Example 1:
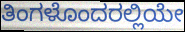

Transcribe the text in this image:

ತಿಂಗಳೊಂದರಲ್ಲಿಯೇ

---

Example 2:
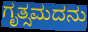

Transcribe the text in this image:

ಗೃತ್ಸಮದನು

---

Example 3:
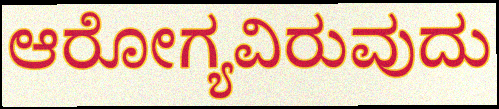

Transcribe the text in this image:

ಆರೋಗ್ಯವಿರುವುದು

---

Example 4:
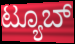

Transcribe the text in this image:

ಟ್ಯೂಬ್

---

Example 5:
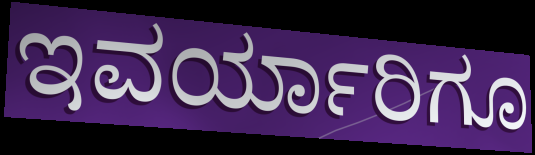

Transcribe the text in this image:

ಇವರ್ಯಾರಿಗೂ